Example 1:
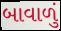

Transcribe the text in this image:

બાવાળું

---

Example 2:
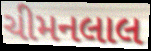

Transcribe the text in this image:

ચીમનલાલ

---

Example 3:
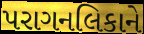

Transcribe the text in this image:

પરાગનલિકાને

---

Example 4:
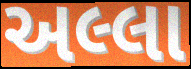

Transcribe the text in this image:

અલ્લા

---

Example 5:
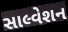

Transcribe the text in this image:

સાલ્વેશન